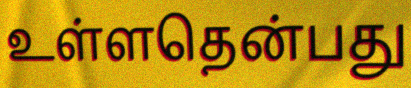
உள்ளதென்பது